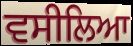
ਵਸੀਲਿਆ